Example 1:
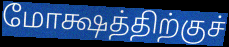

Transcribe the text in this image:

மோக்ஷத்திற்குச்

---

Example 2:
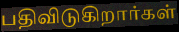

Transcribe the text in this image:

பதிவிடுகிறார்கள்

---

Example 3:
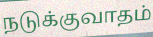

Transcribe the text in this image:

நடுக்குவாதம்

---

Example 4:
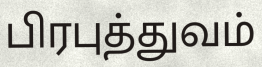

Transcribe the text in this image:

பிரபுத்துவம்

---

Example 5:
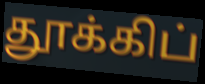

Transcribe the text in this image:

தூக்கிப்